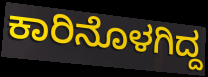
ಕಾರಿನೊಳಗಿದ್ದ